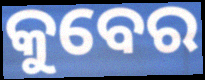
କୁବେର